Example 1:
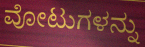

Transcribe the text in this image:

ವೋಟುಗಳನ್ನು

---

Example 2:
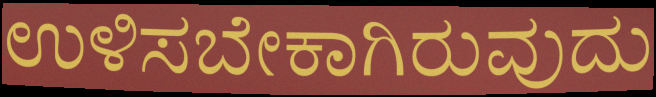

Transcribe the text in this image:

ಉಳಿಸಬೇಕಾಗಿರುವುದು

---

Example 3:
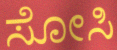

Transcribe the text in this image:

ಸೋಸಿ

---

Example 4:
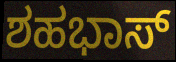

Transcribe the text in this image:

ಶಹಭಾಸ್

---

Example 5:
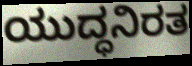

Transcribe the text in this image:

ಯುದ್ಧನಿರತ